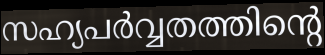
സഹ്യപർവ്വതത്തിന്റെ